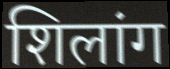
शिलांग